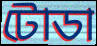
টোডা